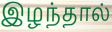
இழந்தால்